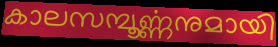
കാലസമ്പൂൎണ്ണനുമായി